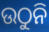
ଉଠୁନି